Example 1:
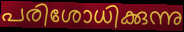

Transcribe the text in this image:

പരിശോധിക്കുന്നു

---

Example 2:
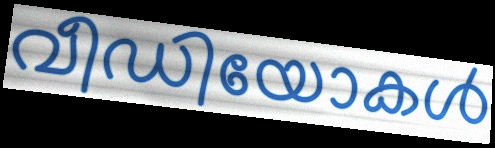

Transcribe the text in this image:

വീഡിയോകൾ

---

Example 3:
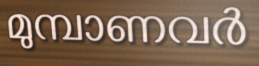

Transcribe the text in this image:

മുമ്പാണവർ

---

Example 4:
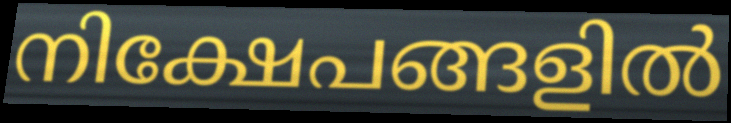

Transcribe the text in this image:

നിക്ഷേപങ്ങളിൽ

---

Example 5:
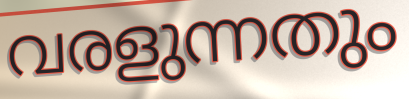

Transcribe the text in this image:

വരളുന്നതും